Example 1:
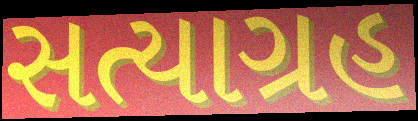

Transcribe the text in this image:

સત્યાગ્રહ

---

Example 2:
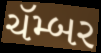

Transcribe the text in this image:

ચૅમ્બર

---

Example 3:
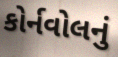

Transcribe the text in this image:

કોર્નવોલનું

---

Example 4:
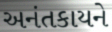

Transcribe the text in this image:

અનંતકાયને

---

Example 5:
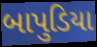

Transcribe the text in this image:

બાપુડિયા